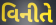
વિનીતે